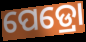
ପେଡ୍ରୋ